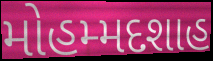
મોહમ્મદશાહ